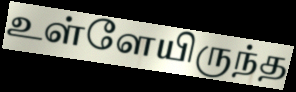
உள்ளேயிருந்த